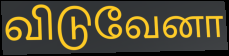
விடுவேனா